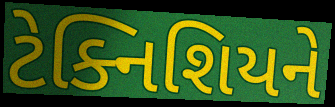
ટેક્નિશિયને